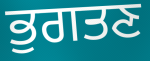
ਭੁਗਤਣ